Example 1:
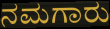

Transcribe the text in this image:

ನಮಗಾರು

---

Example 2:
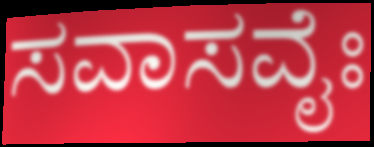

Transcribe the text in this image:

ಸವಾಸವೈಃ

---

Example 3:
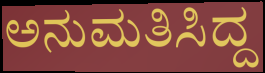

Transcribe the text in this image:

ಅನುಮತಿಸಿದ್ದ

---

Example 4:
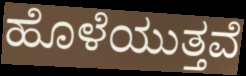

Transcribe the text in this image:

ಹೊಳೆಯುತ್ತವೆ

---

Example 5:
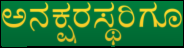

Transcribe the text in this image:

ಅನಕ್ಷರಸ್ಥರಿಗೂ